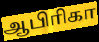
ஆபிரிகா